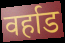
वर्हाड